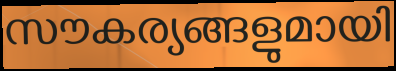
സൗകര്യങ്ങളുമായി